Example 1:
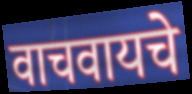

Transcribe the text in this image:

वाचवायचे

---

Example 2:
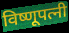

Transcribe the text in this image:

विष्णूपत्नी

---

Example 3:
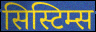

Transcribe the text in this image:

सिस्टिम्स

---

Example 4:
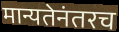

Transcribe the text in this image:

मान्यतेनंतरच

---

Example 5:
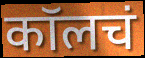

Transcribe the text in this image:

कॉलचं